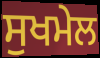
ਸੁਖਮੇਲ